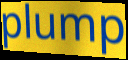
plump